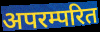
अपरम्परित